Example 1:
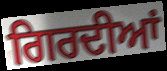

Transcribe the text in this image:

ਗਿਰਦੀਆਂ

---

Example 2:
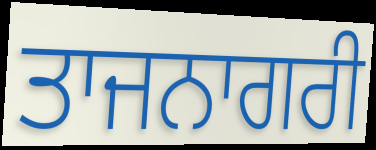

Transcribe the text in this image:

ਤਾਜਨਾਗਰੀ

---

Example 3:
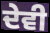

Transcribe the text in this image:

ਦੇਵੀ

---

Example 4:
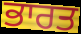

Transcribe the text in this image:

ਭਾਰਤ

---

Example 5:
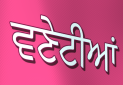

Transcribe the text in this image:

ਵਣੇਟੀਆਂ